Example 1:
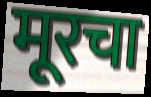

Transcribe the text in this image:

मूरचा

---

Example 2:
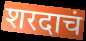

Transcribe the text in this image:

शरदाचं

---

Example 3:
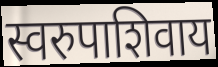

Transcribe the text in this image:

स्वरुपाशिवाय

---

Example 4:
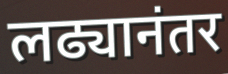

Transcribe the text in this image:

लढ्यानंतर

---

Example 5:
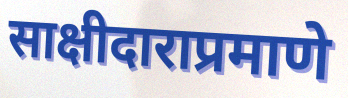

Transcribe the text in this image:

साक्षीदाराप्रमाणे